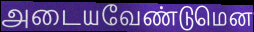
அடையவேண்டுமென